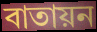
বাতায়ন